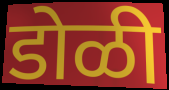
डोळी